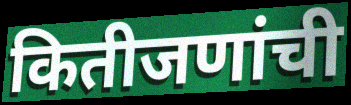
कितीजणांची